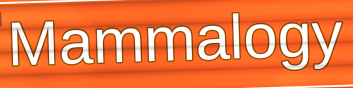
Mammalogy